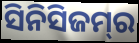
ସିନିସିଜମ୍‌ର